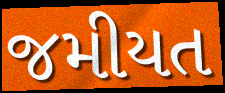
જમીયત